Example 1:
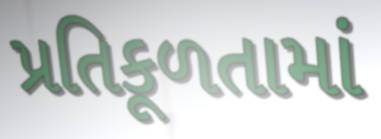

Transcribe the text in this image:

પ્રતિકૂળતામાં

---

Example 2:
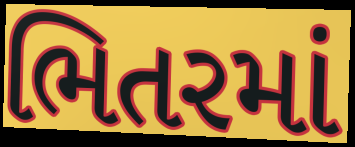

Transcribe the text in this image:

ભિતરમાં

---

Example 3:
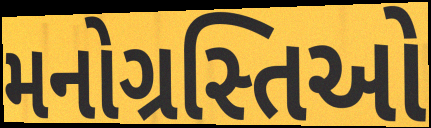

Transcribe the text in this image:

મનોગ્રસ્તિઓ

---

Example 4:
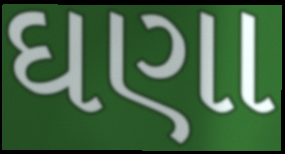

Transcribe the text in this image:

ઘણા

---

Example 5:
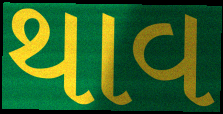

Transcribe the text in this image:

થાવ